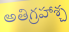
అతిగ్రహాశ్చ